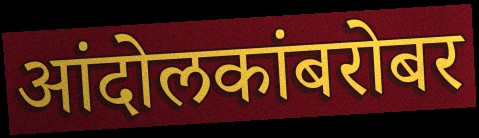
आंदोलकांबरोबर